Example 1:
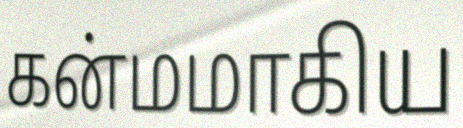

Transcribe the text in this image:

கன்மமாகிய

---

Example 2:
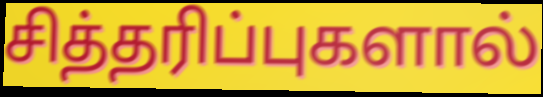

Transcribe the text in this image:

சித்தரிப்புகளால்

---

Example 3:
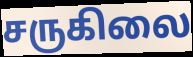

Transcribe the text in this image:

சருகிலை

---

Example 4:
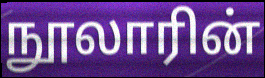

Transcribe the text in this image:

நூலாரின்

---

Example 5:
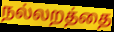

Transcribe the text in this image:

நல்லறத்தை